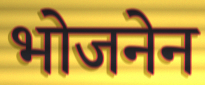
भोजनेन